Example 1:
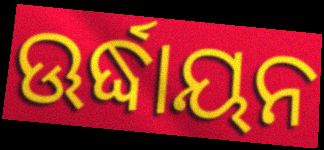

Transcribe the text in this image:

ଊର୍ଦ୍ଧାୟନ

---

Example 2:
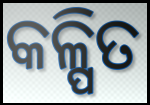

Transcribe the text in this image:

କଳ୍ପିତ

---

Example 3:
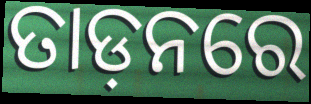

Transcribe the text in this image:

ତାଡ଼ନରେ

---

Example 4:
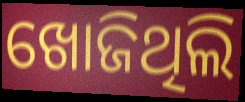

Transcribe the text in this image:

ଖୋଜିଥିଲି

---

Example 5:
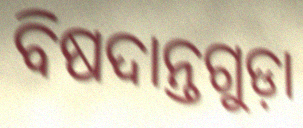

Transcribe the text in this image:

ବିଷଦାନ୍ତଗୁଡ଼ା